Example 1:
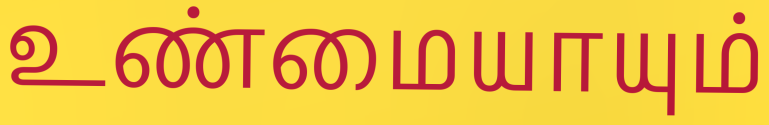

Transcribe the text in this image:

உண்மையாயும்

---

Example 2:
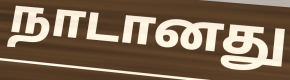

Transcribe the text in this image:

நாடானது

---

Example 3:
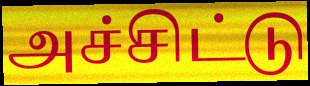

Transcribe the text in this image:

அச்சிட்டு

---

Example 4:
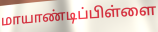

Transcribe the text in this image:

மாயாண்டிப்பிள்ளை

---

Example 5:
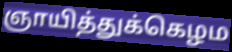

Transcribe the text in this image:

ஞாயித்துக்கெழம